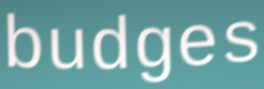
budges